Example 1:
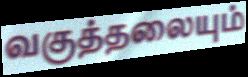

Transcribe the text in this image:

வகுத்தலையும்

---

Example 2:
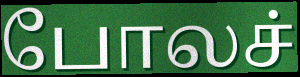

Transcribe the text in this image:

போலச்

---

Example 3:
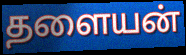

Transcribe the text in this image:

தளையன்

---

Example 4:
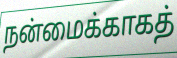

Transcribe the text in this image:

நன்மைக்காகத்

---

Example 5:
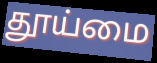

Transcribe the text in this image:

தூய்மை